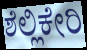
ಶೆಲ್ಲಿಕೇರಿ